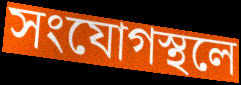
সংযোগস্থলে